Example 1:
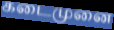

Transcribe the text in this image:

கடைமுனை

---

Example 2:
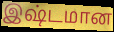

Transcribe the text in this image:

இஷ்டமான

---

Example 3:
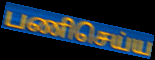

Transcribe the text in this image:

பணிசெய்ய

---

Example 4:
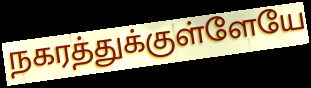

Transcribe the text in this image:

நகரத்துக்குள்ளேயே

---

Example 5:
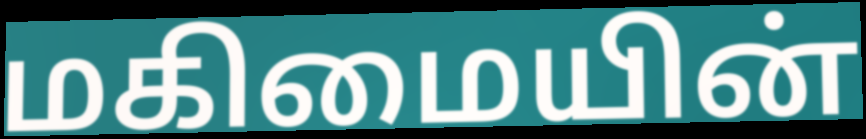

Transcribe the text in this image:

மகிமையின்